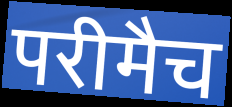
परीमैच